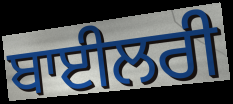
ਬਾਈਲਰੀ